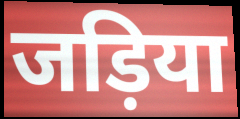
जड़िया